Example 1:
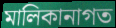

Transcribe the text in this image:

মালিকানাগত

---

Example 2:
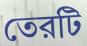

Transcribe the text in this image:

তেরটি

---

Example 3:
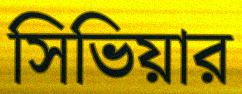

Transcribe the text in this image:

সিভিয়ার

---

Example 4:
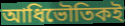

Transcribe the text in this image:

আধিভৌতিকই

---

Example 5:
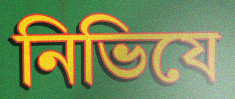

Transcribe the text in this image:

নিভিযে